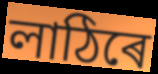
লাঠিৰে